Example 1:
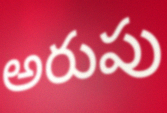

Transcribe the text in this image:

అరుపు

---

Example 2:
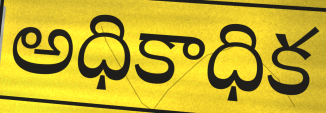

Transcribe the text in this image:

అధికాధిక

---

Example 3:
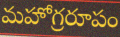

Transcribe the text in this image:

మహోగ్రరూపం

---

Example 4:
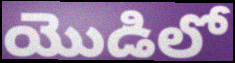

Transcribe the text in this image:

యొడిలో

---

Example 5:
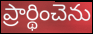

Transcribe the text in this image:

ప్రార్థించెను